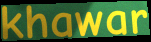
khawar